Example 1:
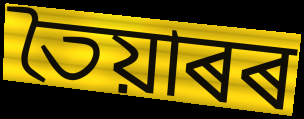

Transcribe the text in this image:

তৈয়াৰৰ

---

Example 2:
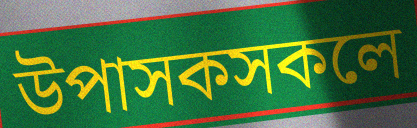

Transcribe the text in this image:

উপাসকসকলে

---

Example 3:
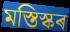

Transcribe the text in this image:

মস্তিস্কৰ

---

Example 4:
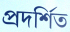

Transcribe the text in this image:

প্ৰদৰ্শিত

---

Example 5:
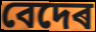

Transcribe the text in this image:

বেদেৰ